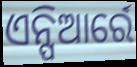
ଏନ୍ପିଆର୍ରେ